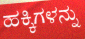
ಹಕ್ಕಿಗಳನ್ನು